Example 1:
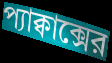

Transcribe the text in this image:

প্যাক্বাক্সের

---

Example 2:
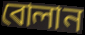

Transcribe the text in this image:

বোলান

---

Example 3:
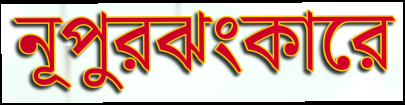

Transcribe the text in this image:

নূপুরঝংকারে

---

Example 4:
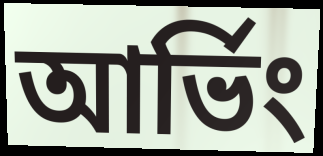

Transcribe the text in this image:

আর্ভিং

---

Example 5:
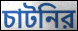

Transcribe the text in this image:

চাটনির